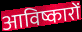
आविष्कारों